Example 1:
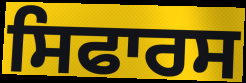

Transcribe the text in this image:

ਸਿਫਾਰਸ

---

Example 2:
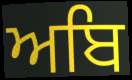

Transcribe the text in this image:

ਅਬਿ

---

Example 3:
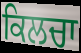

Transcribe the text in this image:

ਕਿਲਚਾ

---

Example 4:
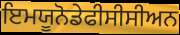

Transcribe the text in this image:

ਇਮਯੂਨੋਡੇਫੀਸੀਸੀਅਨ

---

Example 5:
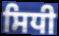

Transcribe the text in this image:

ਸਿਧੀ